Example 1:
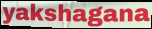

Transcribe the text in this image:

yakshagana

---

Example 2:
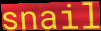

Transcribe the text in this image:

snail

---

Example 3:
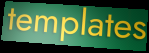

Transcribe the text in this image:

templates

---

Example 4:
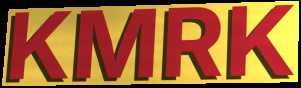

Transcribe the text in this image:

KMRK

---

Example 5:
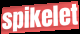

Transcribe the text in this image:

spikelet